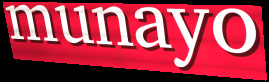
munayo